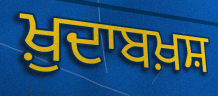
ਖ਼ੁਦਾਬਖ਼ਸ਼